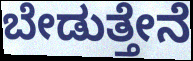
ಬೇಡುತ್ತೇನೆ